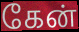
கேன்